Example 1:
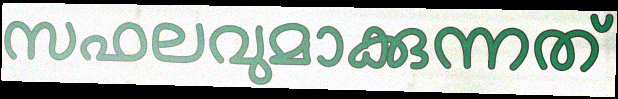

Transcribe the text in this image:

സഫലവുമാക്കുന്നത്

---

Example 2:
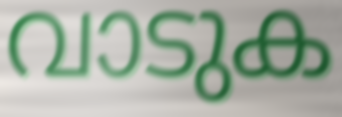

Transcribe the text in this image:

വാടുക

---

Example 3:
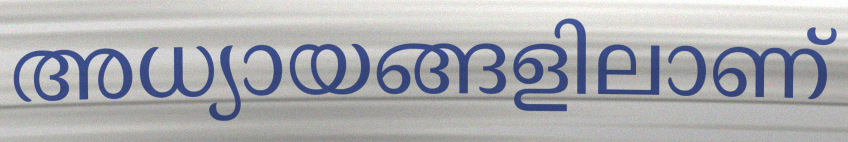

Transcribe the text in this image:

അധ്യായങ്ങളിലാണ്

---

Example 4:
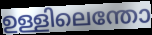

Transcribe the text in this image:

ഉള്ളിലെന്തോ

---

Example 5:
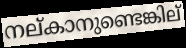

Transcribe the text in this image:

നല്കാനുണ്ടെങ്കില്